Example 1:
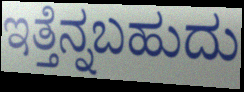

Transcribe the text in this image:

ಇತ್ತೆನ್ನಬಹುದು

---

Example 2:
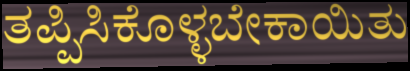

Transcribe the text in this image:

ತಪ್ಪಿಸಿಕೊಳ್ಳಬೇಕಾಯಿತು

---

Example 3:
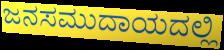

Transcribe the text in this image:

ಜನಸಮುದಾಯದಲ್ಲಿ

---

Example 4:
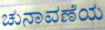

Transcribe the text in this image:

ಚುನಾವಣೆಯ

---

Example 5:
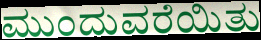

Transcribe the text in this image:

ಮುಂದುವರೆಯಿತು